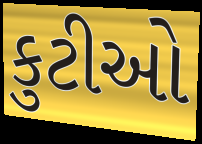
કુટીઓ